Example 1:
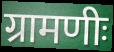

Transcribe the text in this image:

ग्रामणीः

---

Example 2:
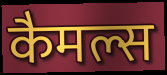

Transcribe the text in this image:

कैमल्स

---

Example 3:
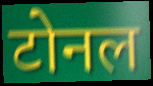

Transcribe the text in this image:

टोनल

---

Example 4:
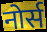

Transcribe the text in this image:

नोर्स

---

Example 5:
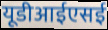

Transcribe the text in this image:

यूडीआईएसई